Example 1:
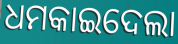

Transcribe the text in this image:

ଧମକାଇଦେଲା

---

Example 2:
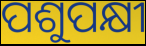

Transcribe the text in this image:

ପଶୁପକ୍ଷୀ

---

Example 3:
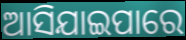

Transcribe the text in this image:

ଆସିଯାଇପାରେ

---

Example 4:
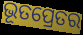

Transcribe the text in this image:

ଭୂତପ୍ରେତର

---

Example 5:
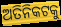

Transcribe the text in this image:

ଅତିନିକଟକୁ